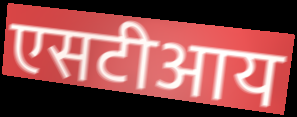
एसटीआय